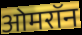
ओमरॉन